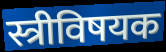
स्त्रीविषयक